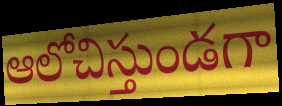
ఆలోచిస్తుండగా